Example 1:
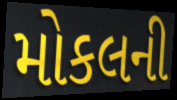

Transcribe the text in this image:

મોકલની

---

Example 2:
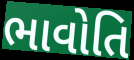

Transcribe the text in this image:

ભાવોતિ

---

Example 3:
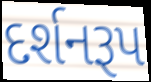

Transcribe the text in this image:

દર્શનરૂપ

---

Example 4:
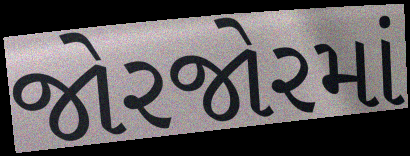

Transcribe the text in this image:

જોરજોરમાં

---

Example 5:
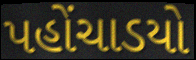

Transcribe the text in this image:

પહોંચાડયો